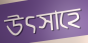
উৎসাহে